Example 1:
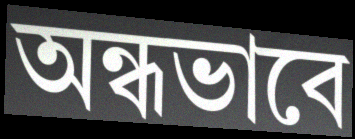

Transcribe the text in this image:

অন্ধভাবে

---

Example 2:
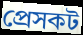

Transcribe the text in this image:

প্রেসকট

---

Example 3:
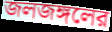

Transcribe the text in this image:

জলজঙ্গলের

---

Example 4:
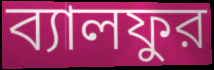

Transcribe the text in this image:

ব্যালফুর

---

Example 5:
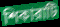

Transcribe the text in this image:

শিকারাটি